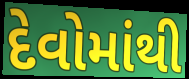
દેવોમાંથી